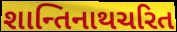
શાન્તિનાથચરિત